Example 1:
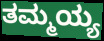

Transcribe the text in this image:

ತಮ್ಮಯ್ಯ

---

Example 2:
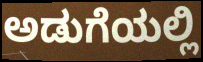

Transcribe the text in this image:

ಅಡುಗೆಯಲ್ಲಿ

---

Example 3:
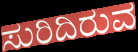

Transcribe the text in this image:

ಸುರಿದಿರುವ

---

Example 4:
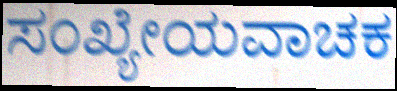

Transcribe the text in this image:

ಸಂಖ್ಯೇಯವಾಚಕ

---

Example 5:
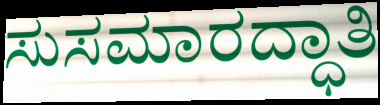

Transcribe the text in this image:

ಸುಸಮಾರದ್ಧಾತಿ